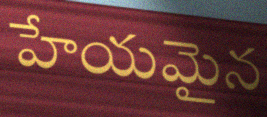
హేయమైన